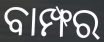
ବାମ୍ଫର